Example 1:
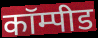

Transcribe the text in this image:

कॉम्पीड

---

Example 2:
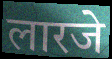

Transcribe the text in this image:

लारजे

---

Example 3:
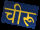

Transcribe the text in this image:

चीरू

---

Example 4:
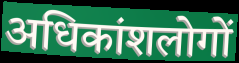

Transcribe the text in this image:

अधिकांशलोगों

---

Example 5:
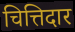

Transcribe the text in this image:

चित्तिदार